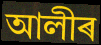
আলীৰ